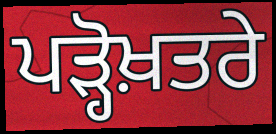
ਪੜ੍ਹੋਖ਼ਤਰੇ